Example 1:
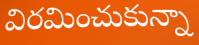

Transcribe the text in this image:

విరమించుకున్నా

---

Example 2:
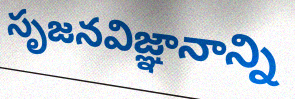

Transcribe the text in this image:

సృజనవిజ్ఞానాన్ని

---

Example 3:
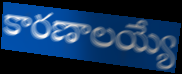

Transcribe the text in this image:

కారణాలయ్యే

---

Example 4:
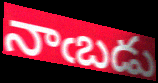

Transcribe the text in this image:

నాఁబడు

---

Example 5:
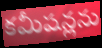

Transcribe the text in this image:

కమీషన్లను